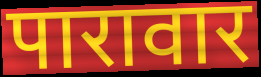
पारावार